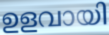
ഉളവായി